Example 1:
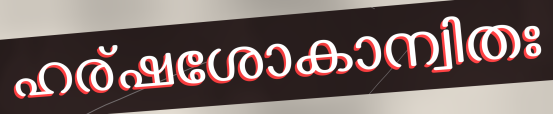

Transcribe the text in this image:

ഹര്ഷശോകാന്വിതഃ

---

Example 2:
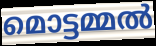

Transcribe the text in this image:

മൊട്ടമ്മൽ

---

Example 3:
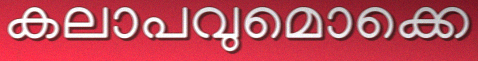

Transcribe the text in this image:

കലാപവുമൊക്കെ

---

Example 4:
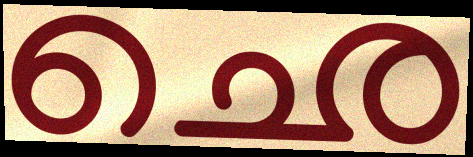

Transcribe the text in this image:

ഛെ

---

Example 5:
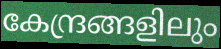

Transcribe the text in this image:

കേന്ദ്രങ്ങളിലും